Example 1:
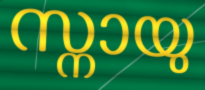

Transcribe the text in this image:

സ്നായു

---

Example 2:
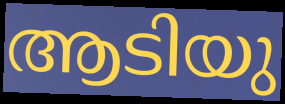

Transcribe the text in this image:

ആടിയു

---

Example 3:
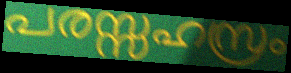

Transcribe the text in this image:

പരസ്സഹസ്രം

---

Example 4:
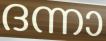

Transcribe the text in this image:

ദന്നാ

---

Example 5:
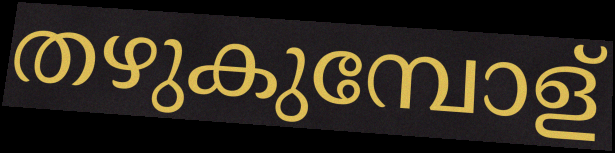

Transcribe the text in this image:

തഴുകുമ്പോള്